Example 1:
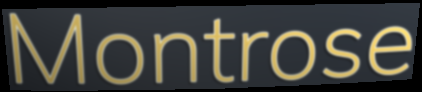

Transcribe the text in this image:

Montrose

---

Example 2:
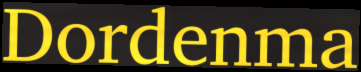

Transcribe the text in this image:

Dordenma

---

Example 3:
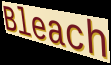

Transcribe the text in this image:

Bleach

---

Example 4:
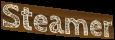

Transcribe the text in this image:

Steamer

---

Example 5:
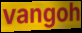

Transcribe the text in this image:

vangoh